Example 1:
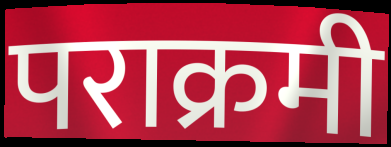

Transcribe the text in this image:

पराक्रमी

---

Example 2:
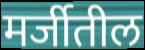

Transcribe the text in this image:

मर्जीतील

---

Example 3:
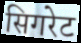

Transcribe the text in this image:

सिगरेट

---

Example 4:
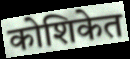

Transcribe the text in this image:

कोशिकेत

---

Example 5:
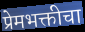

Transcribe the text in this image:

प्रेमभक्तीचा